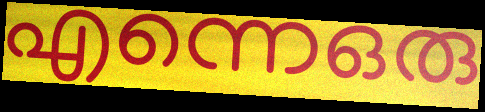
എന്നെഒരു